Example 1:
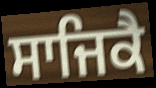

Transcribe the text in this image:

ਸਾਜਿਕੈ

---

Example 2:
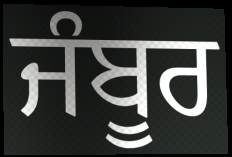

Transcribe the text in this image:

ਜੰਬੂਰ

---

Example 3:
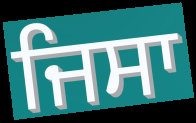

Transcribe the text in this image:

ਜਿਸਾ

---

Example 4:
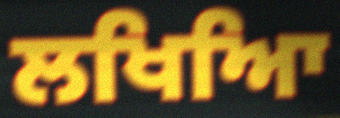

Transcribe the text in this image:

ਲਖਿਆਿ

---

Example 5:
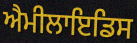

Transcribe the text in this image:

ਐਮੀਲਾਇਡਿਸ